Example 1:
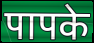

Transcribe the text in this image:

पापके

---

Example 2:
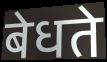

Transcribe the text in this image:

बेधते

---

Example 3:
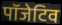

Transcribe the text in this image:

पॉजेटिव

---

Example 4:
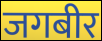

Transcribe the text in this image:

जगबीर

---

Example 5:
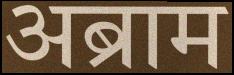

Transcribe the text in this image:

अब्राम